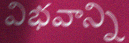
విభవాన్ని